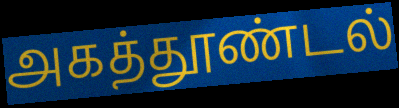
அகத்தூண்டல்